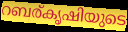
റബര്കൃഷിയുടെ